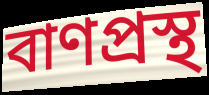
বাণপ্রস্থ